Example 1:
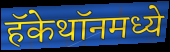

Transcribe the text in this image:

हॅकेथॉनमध्ये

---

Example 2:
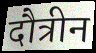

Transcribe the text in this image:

दौत्रीन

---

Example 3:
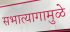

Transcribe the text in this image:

सभात्यागामुळे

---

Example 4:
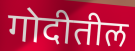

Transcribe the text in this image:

गोदीतील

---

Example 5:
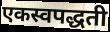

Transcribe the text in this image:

एकस्वपद्धती